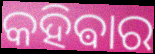
କହିଵାର